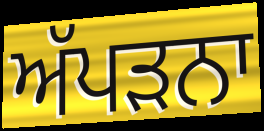
ਅੱਪੜਨਾ